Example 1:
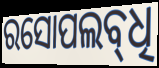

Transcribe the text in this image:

ରସୋପଲବ୍‌ଧି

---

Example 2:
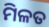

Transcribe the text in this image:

ମିଳତ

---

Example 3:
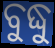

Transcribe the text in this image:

ବୁଦ୍ଧୁ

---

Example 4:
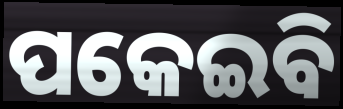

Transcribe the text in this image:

ପକେଇବି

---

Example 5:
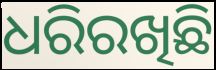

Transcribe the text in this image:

ଧରିରଖିଛି